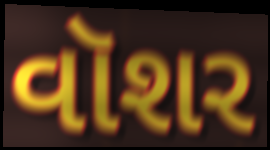
વૉશર